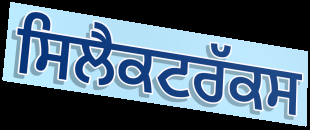
ਸਿਲੈਕਟਰੱਕਸ